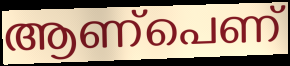
ആണ്പെണ്